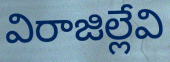
విరాజిల్లేవి